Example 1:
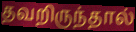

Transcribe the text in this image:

தவறிருந்தால்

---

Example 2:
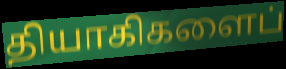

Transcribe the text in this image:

தியாகிகளைப்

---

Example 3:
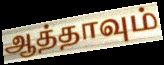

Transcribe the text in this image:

ஆத்தாவும்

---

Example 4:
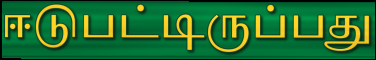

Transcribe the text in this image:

ஈடுபட்டிருப்பது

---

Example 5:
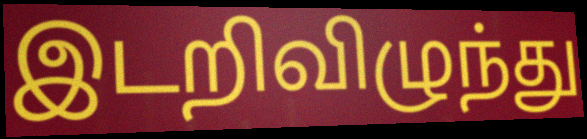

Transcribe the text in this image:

இடறிவிழுந்து